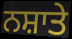
ਨਸ਼ਾਤੇ